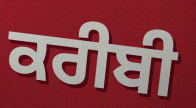
ਕਰੀਬੀ